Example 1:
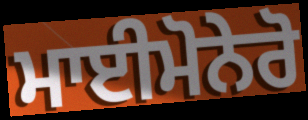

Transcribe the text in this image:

ਮਾਈਮੋਨੇਰੋ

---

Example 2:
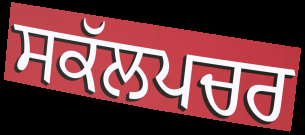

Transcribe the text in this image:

ਸਕੱਲਪਚਰ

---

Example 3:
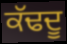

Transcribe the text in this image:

ਕੱਢਦੂ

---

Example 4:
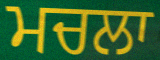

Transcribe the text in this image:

ਮਚਲਾ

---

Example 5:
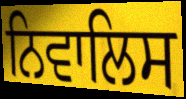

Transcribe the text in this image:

ਨਿਵਾਲਿਸ